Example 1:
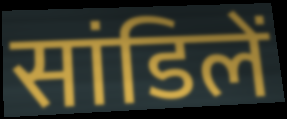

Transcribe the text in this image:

सांडिलें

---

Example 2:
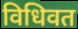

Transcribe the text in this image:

विधिवत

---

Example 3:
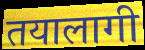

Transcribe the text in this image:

तयालागी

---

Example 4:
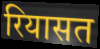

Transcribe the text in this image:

रियासत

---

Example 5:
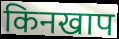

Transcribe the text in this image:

किनखाप